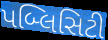
પબ્લિસિટી